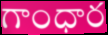
గాంధార